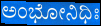
ಅಂಭೋನಿಧಿಃ